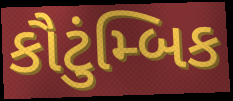
કૌટુંમ્બિક